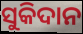
ସୁକିଦାନ